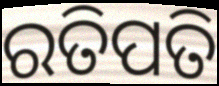
ରତିପତି